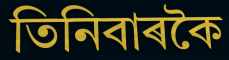
তিনিবাৰকৈ